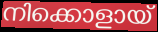
നിക്കൊളായ്